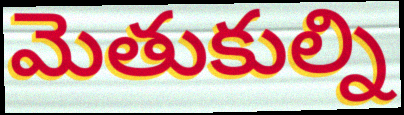
మెతుకుల్ని